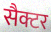
सैक्टर